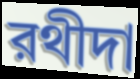
রথীদা